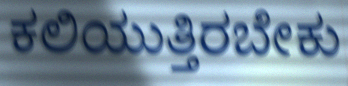
ಕಲಿಯುತ್ತಿರಬೇಕು